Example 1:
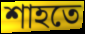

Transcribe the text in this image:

শাহতে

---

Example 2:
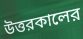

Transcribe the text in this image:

উত্তরকালের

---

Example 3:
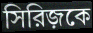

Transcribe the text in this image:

সিরিজ়কে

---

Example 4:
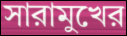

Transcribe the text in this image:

সারামুখের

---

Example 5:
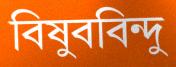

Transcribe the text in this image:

বিষুববিন্দু